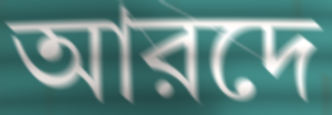
আরদে